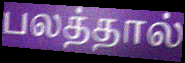
பலத்தால்